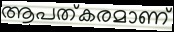
ആപത്കരമാണ്